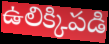
ఉలిక్కిపడి